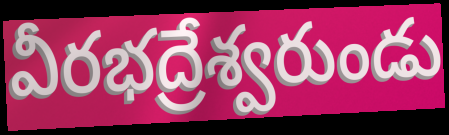
వీరభద్రేశ్వరుండు